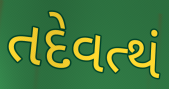
તદેવત્થં